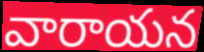
వారాయన